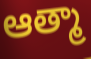
ఆత్మా